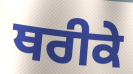
ਥਰੀਕੇ